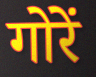
गोरें